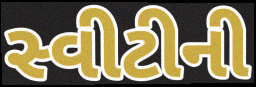
સ્વીટીની